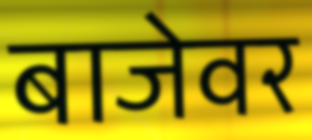
बाजेवर